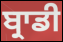
ਬ੍ਰਾਡੀ